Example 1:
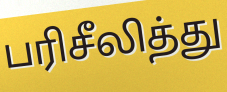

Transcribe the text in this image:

பரிசீலித்து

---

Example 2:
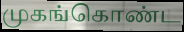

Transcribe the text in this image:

முகங்கொண்ட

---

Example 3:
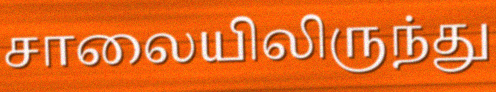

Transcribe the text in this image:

சாலையிலிருந்து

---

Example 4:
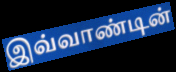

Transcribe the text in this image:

இவ்வாண்டின்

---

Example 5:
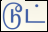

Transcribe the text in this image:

டூட்